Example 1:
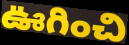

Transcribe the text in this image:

ఊగించి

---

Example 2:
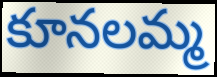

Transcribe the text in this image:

కూనలమ్మ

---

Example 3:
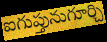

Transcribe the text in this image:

ఐగుప్తునుగూర్చి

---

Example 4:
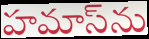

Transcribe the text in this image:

హమాస్‌ను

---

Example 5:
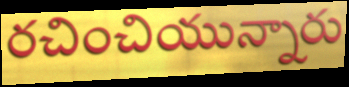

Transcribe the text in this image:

రచించియున్నారు